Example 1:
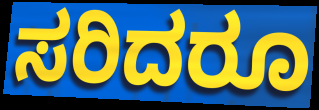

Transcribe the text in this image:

ಸರಿದರೂ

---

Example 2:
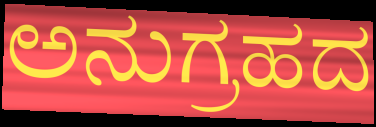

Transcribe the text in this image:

ಅನುಗ್ರಹದ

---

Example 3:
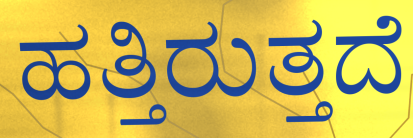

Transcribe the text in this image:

ಹತ್ತಿರುತ್ತದೆ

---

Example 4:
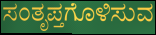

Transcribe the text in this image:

ಸಂತೃಪ್ತಗೊಳಿಸುವ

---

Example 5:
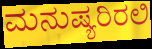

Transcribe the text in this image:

ಮನುಷ್ಯರಿರಲಿ